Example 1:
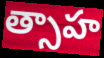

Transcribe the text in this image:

త్సాహ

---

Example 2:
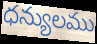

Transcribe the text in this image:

ధన్యులము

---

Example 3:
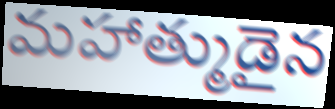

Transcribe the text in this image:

మహాత్ముడైన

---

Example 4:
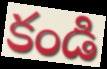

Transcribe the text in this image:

కండి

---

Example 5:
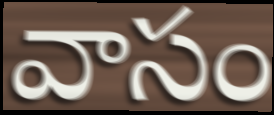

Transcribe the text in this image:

వాసం